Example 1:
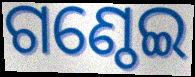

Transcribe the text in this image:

ଗଣ୍ଠେଇ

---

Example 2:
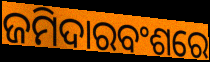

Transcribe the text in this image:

ଜମିଦାରବଂଶରେ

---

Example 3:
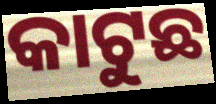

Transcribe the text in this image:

କାଟୁଛ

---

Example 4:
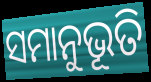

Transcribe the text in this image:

ସମାନୁଭୂତି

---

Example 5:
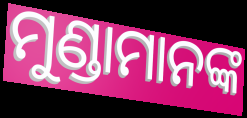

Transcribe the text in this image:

ମୁଣ୍ଡାମାନଙ୍କ